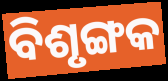
ବିଶୃଙ୍ଗକ